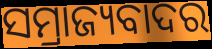
ସମ୍ରାଜ୍ୟବାଦର